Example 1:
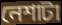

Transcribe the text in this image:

নেশাটা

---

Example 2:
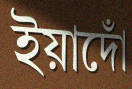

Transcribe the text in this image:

ইয়াদোঁ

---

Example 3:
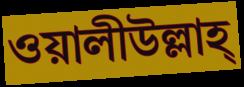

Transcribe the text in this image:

ওয়ালীউল্লাহ্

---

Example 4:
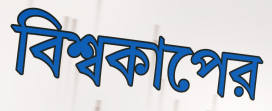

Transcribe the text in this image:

বিশ্বকাপের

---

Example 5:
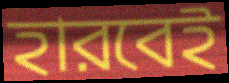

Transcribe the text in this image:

হারবেই